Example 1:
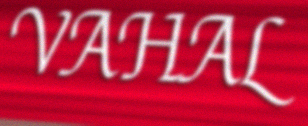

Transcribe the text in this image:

VAHAL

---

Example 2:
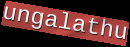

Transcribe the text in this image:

ungalathu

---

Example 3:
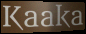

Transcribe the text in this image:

Kaaka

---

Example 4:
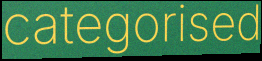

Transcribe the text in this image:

categorised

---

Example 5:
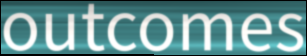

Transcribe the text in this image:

outcomes